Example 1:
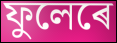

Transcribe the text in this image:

ফুলেৰে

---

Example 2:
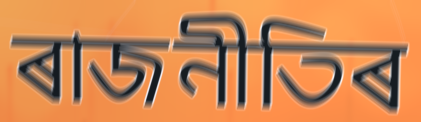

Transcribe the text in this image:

ৰাজনীতিৰ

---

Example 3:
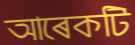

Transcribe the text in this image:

আৰেকটি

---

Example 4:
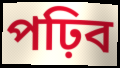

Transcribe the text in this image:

পঢ়িব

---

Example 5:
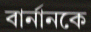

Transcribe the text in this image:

বাৰ্নানকে